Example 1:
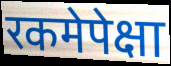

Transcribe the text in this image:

रकमेपेक्षा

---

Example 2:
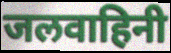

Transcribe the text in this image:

जलवाहिनी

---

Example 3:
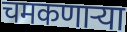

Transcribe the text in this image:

चमकणाऱ्या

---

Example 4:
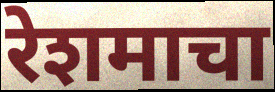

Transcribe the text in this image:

रेशमाचा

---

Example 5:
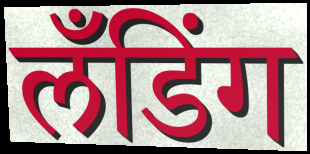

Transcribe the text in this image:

लँडिंग